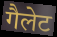
गैलेट